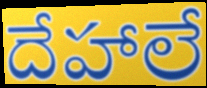
దేహాలే